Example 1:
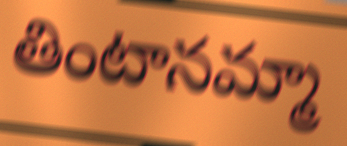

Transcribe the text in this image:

తింటానమ్మా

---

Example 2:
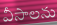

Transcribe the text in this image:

వీసాలను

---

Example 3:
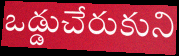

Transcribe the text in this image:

ఒడ్డుచేరుకుని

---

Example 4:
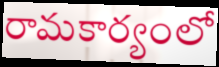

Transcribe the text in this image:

రామకార్యంలో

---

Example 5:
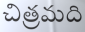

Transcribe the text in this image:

చిత్రమది